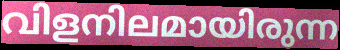
വിളനിലമായിരുന്ന